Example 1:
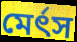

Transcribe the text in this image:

মের্ৎস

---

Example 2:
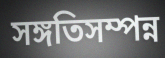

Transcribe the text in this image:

সঙ্গতিসম্পন্ন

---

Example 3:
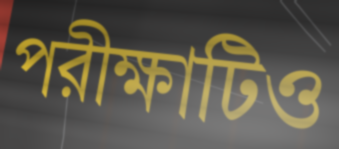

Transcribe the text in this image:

পরীক্ষাটিও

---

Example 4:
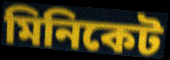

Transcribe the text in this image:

মিনিকেট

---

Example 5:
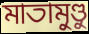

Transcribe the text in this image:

মাতামুণ্ডু